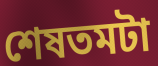
শেষতমটা